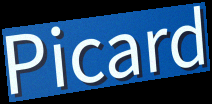
Picard